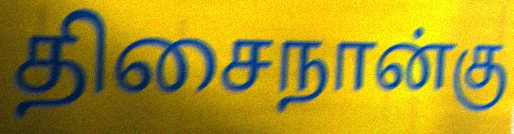
திசைநான்கு